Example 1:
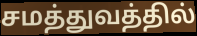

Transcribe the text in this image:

சமத்துவத்தில்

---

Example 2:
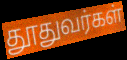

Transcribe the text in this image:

தூதுவர்கள்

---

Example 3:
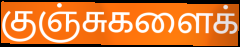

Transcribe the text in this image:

குஞ்சுகளைக்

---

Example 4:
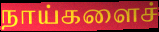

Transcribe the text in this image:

நாய்களைச்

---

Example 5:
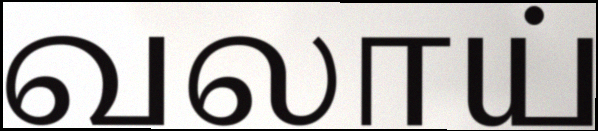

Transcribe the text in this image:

வலாய்